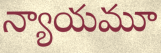
న్యాయమూ